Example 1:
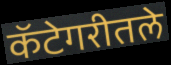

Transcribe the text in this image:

कॅटेगरीतले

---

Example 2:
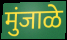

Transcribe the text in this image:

मुंजाळे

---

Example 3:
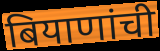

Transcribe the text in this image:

बियाणांची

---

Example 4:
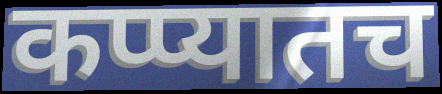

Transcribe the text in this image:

कप्प्यातच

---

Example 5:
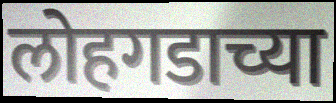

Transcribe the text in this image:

लोहगडाच्या